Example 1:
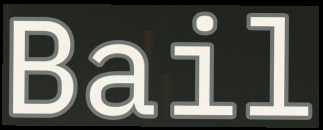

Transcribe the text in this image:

Bail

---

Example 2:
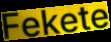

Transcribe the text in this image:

Fekete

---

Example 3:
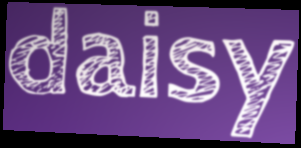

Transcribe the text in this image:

daisy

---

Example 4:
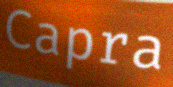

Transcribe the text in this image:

Capra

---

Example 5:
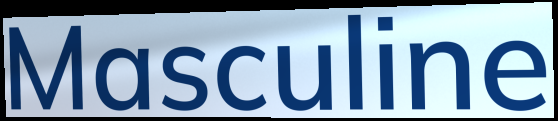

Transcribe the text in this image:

Masculine